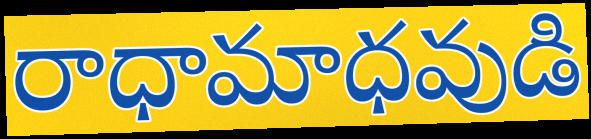
రాధామాధవుడి